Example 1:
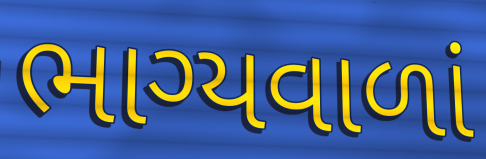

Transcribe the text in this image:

ભાગ્યવાળાં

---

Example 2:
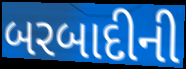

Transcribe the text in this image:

બરબાદીની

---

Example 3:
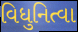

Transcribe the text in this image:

વિધુનિત્વા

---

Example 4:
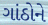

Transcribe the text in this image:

ગાંઠોને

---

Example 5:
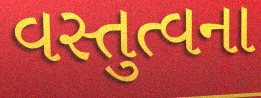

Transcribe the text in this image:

વસ્તુત્વના